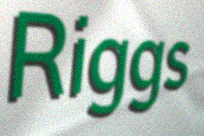
Riggs